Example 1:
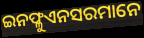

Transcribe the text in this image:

ଇନଫ୍ଳୁଏନସରମାନେ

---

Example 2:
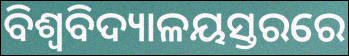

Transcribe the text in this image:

ବିଶ୍ୱବିଦ୍ୟାଳୟସ୍ତରରେ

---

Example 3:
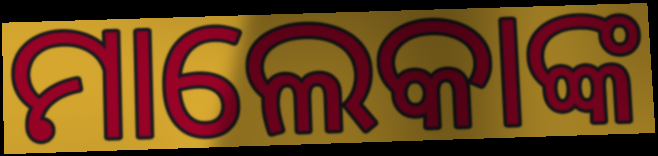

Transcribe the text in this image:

ମାଲେକାଙ୍କ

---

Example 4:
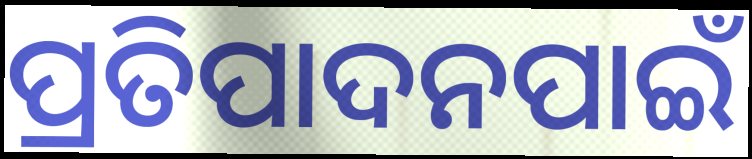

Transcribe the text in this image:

ପ୍ରତିପାଦନପାଇଁ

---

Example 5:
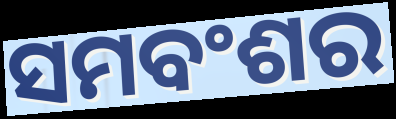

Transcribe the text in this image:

ସମବଂଶର